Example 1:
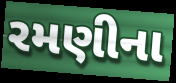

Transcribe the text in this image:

રમણીના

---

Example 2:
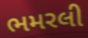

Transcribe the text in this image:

ભમરલી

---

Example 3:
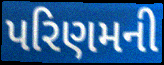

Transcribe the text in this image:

પરિણમની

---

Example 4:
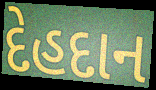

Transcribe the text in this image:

દેહદાન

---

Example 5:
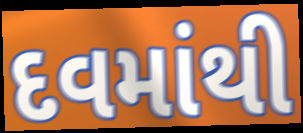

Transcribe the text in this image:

દવમાંથી